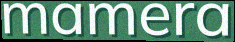
mamera